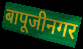
बापूजीनगर